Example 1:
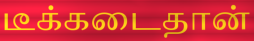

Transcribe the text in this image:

டீக்கடைதான்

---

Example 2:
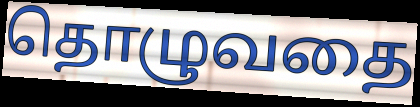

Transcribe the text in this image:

தொழுவதை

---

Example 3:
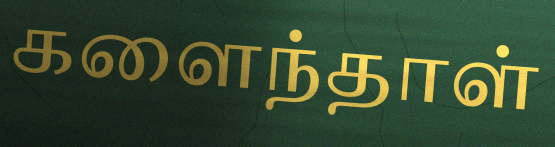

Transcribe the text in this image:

களைந்தாள்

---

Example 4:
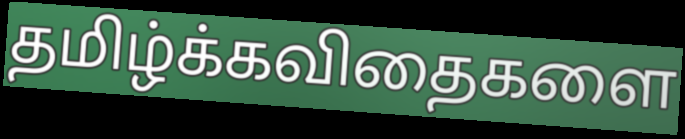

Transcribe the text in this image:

தமிழ்க்கவிதைகளை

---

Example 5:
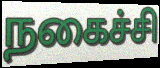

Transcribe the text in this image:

நகைச்சி